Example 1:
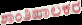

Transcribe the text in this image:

ಶಾಂತಿಪಾಲಕರ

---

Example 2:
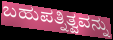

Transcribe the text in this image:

ಬಹುಪತ್ನಿತ್ವವನ್ನು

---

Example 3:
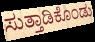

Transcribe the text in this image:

ಸುತ್ತಾಡಿಕೊಂಡು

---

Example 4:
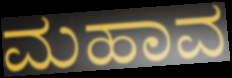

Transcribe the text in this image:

ಮಹಾವ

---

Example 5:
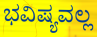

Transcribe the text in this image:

ಭವಿಷ್ಯವಲ್ಲ